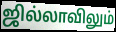
ஜில்லாவிலும்